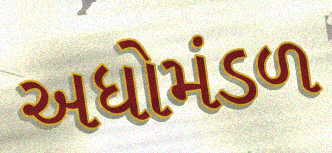
અધોમંડળ